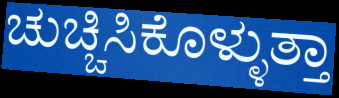
ಚುಚ್ಚಿಸಿಕೊಳ್ಳುತ್ತಾ